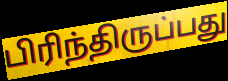
பிரிந்திருப்பது